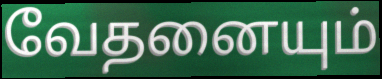
வேதனையும்